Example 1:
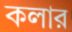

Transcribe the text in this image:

কলার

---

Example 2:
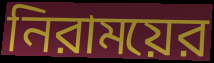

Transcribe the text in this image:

নিরাময়ের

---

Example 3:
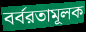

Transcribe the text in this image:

বর্বরতামূলক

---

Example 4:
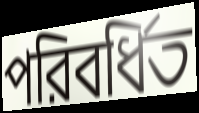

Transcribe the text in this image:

পরিবর্ধিত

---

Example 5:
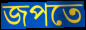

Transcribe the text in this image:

জপতে